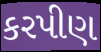
કરપીણ